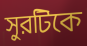
সুরটিকে